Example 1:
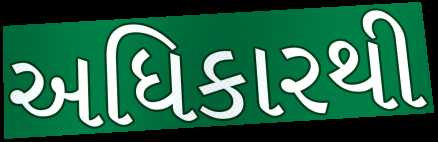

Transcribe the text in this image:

અધિકારથી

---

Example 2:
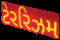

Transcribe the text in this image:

ટેરરિઝમ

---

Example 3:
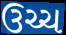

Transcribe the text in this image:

ઉચ્ચ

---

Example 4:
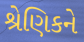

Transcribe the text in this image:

શ્રેણિકને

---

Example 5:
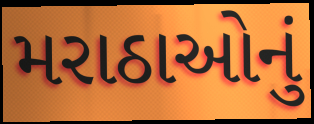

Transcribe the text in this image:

મરાઠાઓનું